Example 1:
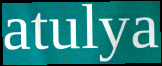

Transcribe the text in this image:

atulya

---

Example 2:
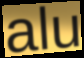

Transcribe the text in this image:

alu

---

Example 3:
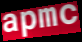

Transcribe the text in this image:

apmc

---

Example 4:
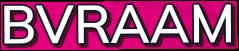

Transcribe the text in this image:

BVRAAM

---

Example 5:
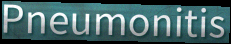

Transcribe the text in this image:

Pneumonitis